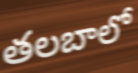
తలబాలో